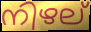
നിഴല്